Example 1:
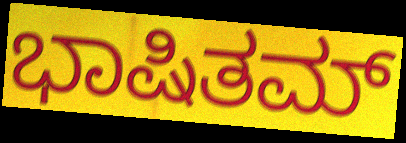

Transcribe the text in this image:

ಭಾಷಿತಮ್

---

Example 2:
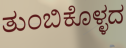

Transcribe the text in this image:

ತುಂಬಿಕೊಳ್ಳದ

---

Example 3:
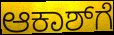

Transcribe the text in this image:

ಆಕಾಶ್‌ಗೆ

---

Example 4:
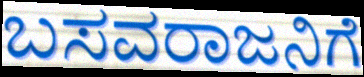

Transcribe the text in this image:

ಬಸವರಾಜನಿಗೆ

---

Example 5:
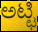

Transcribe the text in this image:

ಅಟ್ಟಿ